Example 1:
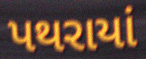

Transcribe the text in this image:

પથરાયાં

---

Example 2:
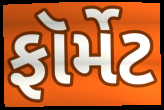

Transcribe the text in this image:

ફૉર્મેટ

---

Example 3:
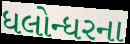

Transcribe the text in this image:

ધલોન્ધરના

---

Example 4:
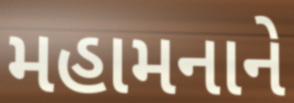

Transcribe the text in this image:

મહામનાને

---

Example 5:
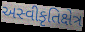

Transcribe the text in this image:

અસ્વીકૃતિક્ષેત્ર